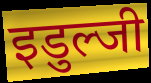
इडुल्जी